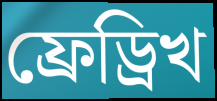
ফ্ৰেড্ৰিখ